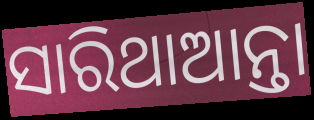
ସାରିଥାଆନ୍ତା